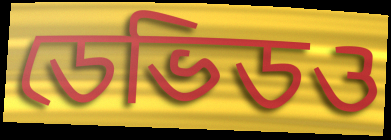
ডেভিডও